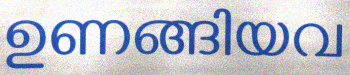
ഉണങ്ങിയവ